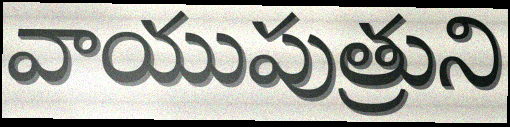
వాయుపుత్రుని